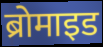
ब्रोमाइड